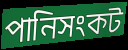
পানিসংকট